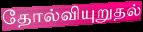
தோல்வியுறுதல்